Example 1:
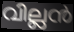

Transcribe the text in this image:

വില്ലൻ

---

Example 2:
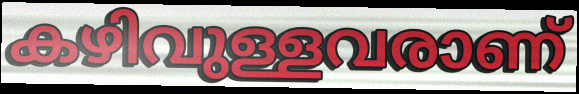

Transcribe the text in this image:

കഴിവുള്ളവരാണ്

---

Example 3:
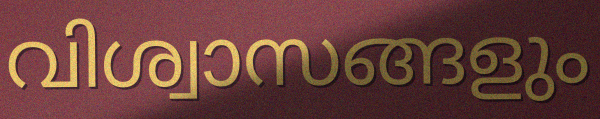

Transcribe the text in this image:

വിശ്വാസങ്ങളും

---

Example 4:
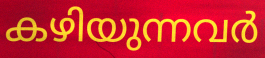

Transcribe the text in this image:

കഴിയുന്നവർ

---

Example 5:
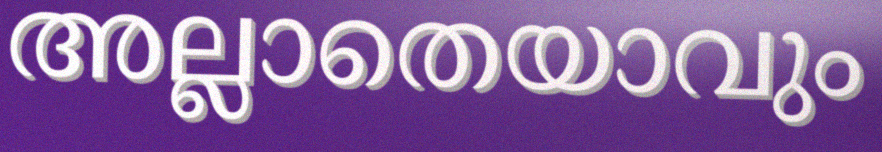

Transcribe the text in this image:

അല്ലാതെയാവും